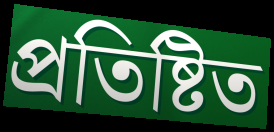
প্রতিষ্টিত